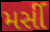
મર્સી